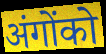
अंगोंको